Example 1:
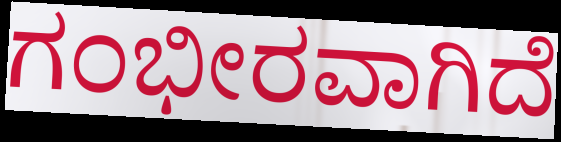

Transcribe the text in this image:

ಗಂಭೀರವಾಗಿದೆ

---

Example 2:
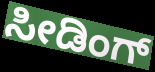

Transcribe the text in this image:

ಸೀಡಿಂಗ್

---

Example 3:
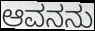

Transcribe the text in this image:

ಆವನನು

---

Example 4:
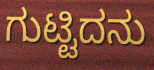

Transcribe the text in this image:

ಗುಟ್ಟಿದನು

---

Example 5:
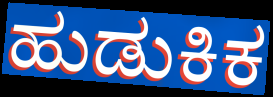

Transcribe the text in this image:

ಹುಡುಕಿಕ